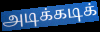
அடிக்கடிக்